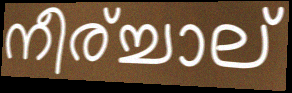
നീര്ച്ചാല്